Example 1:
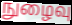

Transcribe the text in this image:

நுழைவு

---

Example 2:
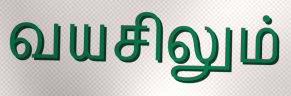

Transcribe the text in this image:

வயசிலும்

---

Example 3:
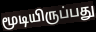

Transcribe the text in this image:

மூடியிருப்பது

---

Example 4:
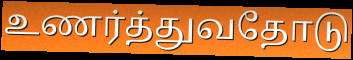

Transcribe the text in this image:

உணர்த்துவதோடு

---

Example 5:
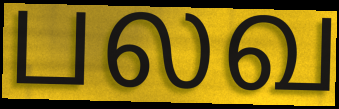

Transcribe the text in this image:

பலவ